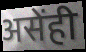
असेंही